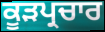
ਕੂੜਪ੍ਰਚਾਰ